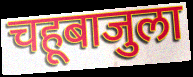
चहूबाजुला